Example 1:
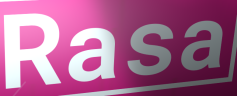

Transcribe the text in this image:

Rasa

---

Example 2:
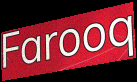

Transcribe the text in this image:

Farooq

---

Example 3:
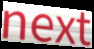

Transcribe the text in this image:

next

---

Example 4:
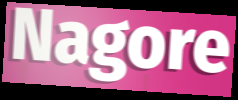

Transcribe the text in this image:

Nagore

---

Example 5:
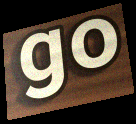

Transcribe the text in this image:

go